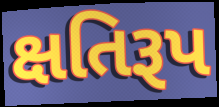
ક્ષતિરૂપ